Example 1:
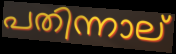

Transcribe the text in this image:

പതിന്നാല്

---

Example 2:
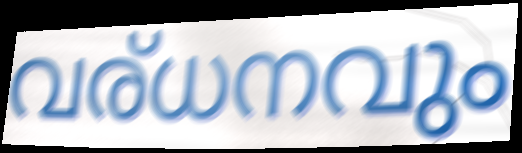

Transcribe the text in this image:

വര്ധനവും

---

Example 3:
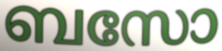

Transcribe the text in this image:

ബസോ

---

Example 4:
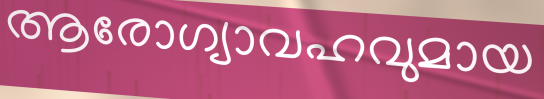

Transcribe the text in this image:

ആരോഗ്യാവഹവുമായ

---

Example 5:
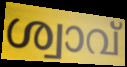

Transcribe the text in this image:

ശ്വാവ്